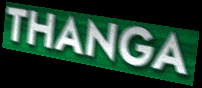
THANGA